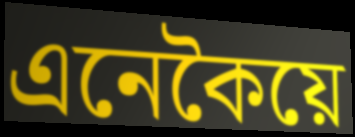
এনেকৈয়ে